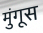
मुंगूस